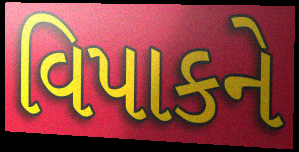
વિપાકને